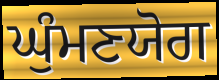
ਘੁੰਮਣਯੋਗ